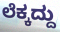
ಲೆಕ್ಕದ್ದು